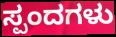
ಸ್ಪಂದಗಳು